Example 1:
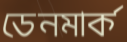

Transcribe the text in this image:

ডেনমার্ক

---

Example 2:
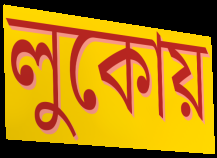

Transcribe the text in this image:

লুকোয়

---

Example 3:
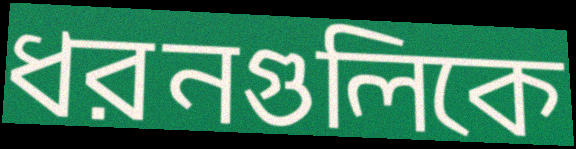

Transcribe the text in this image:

ধরনগুলিকে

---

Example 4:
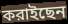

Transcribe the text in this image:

করাইছেন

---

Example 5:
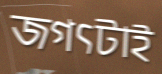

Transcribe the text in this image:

জগৎটাই